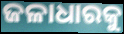
ଜଳାଧାରକୁ